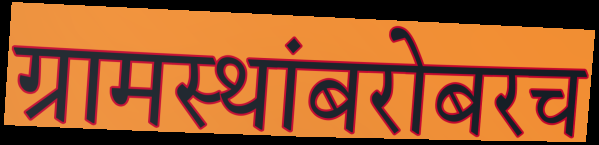
ग्रामस्थांबरोबरच